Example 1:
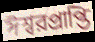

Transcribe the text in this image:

ঈশ্বরপ্রাপ্তি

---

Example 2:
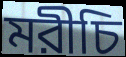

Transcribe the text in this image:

মরীচি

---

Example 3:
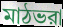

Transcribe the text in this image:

মাঠভরা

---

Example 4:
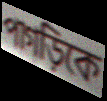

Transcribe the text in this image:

পাগড়িকে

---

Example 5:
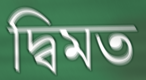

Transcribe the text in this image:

দ্বিমত